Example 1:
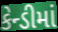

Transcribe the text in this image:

કેન્ડીમાં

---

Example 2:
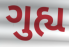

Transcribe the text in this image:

ગુહ્ય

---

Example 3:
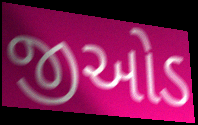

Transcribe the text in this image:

જીઓડ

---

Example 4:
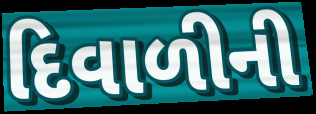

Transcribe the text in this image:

દિવાળીની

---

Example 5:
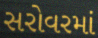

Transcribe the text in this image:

સરોવરમાં